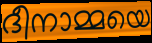
ദീനാമ്മയെ